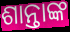
ଶାନ୍ତାଙ୍କ